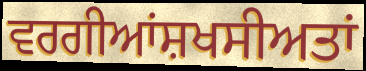
ਵਰਗੀਆਂਸ਼ਖਸੀਅਤਾਂ